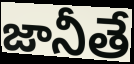
జానీతే